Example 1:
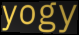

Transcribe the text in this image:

yogy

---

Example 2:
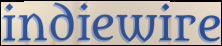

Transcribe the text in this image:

indiewire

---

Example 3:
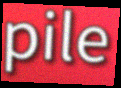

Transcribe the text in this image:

pile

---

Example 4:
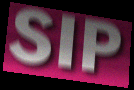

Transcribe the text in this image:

SIP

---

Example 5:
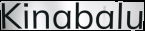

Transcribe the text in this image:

Kinabalu